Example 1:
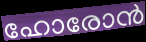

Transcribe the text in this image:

ഹോരോൻ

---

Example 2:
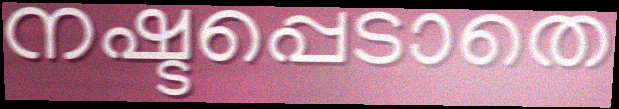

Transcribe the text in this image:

നഷ്ടപ്പെടാതെ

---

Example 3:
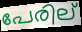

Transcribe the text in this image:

പേരില്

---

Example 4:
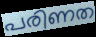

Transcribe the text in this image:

പരിണത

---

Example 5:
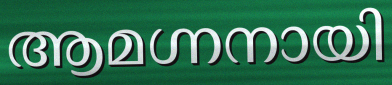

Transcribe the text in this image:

ആമഗ്നനായി